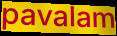
pavalam